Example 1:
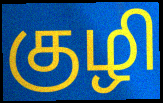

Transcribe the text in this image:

குழி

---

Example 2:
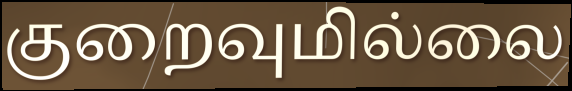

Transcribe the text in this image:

குறைவுமில்லை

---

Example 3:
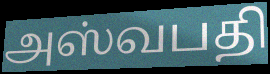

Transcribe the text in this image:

அஸ்வபதி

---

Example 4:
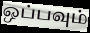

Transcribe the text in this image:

ஒப்பவும்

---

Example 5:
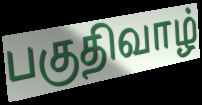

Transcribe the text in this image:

பகுதிவாழ்